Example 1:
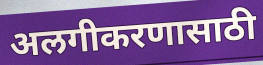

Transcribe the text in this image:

अलगीकरणासाठी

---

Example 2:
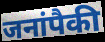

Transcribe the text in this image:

जनांपैकी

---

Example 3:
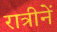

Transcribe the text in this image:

रात्रीनें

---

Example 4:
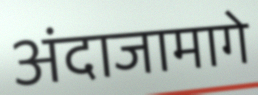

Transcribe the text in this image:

अंदाजामागे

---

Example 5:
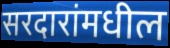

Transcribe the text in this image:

सरदारांमधील